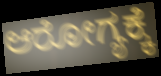
ಆರೋಗ್ಯಕ್ಕೆ